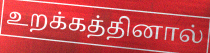
உறக்கத்தினால்